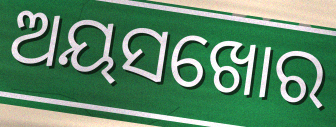
ଅୟସଖୋର